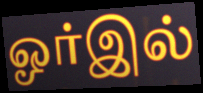
ஓர்இல்